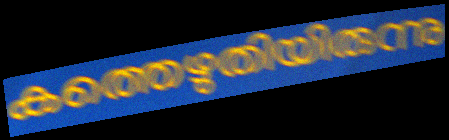
കത്തെഴുതിയിരുന്നു